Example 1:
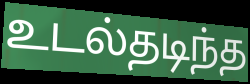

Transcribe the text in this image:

உடல்தடிந்த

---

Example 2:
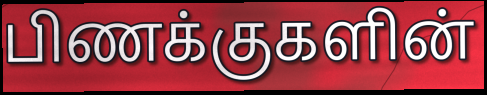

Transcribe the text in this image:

பிணக்குகளின்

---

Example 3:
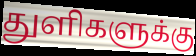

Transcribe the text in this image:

துளிகளுக்கு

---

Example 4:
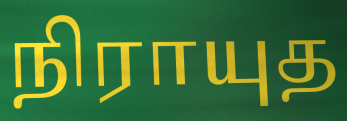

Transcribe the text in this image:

நிராயுத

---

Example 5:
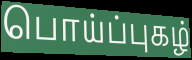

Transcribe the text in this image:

பொய்ப்புகழ்